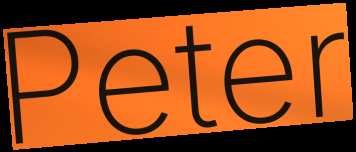
Peter